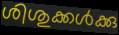
ശിശുക്കൾക്കു